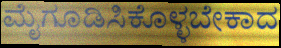
ಮೈಗೂಡಿಸಿಕೊಳ್ಳಬೇಕಾದ